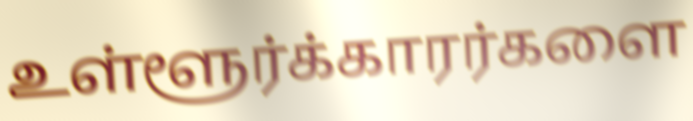
உள்ளூர்க்காரர்களை